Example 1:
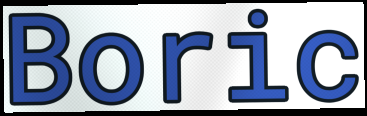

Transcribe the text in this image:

Boric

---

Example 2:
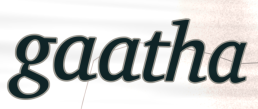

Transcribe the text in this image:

gaatha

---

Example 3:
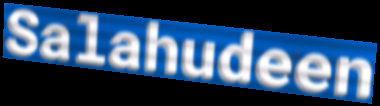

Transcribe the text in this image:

Salahudeen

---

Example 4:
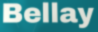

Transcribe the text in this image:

Bellay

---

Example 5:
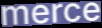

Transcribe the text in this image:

merce